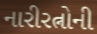
નારીરત્નોની